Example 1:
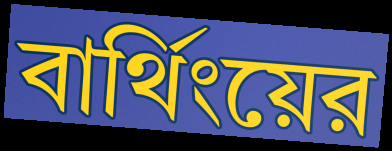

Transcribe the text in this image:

বার্থিংয়ের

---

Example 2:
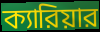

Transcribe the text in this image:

ক্যারিয়ার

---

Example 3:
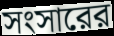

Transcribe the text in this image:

সংসারের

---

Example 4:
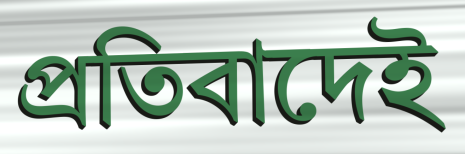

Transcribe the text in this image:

প্রতিবাদেই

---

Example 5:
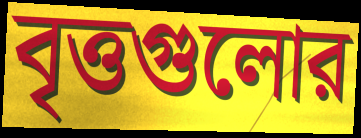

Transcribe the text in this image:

বৃত্তগুলোর